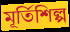
মূর্তিশিল্প